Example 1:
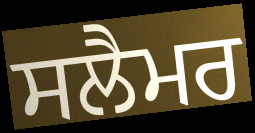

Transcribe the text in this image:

ਸਲੈਮਰ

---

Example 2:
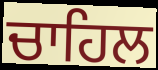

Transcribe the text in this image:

ਚਾਹਿਲ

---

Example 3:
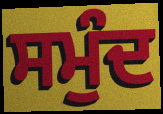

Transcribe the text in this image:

ਸਮੁੰਦ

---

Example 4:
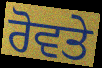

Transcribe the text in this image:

ਰੋਵਤੇ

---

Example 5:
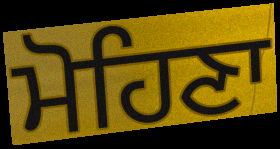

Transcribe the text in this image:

ਮੋਹਿਣਾ